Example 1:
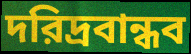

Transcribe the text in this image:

দরিদ্রবান্ধব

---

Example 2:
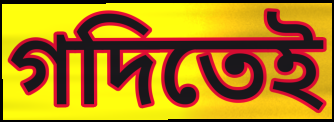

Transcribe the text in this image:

গদিতেই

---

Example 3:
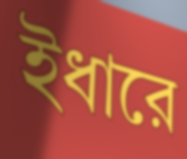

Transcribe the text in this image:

ইধারে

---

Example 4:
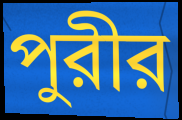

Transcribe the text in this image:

পুরীর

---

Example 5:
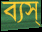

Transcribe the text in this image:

ব্যস্